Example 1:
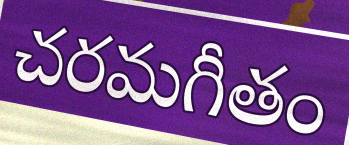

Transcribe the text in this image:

చరమగీతం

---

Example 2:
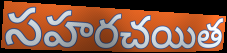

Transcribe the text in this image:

సహరచయిత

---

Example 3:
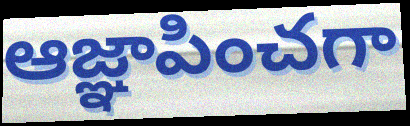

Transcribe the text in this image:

ఆజ్ఞాపించగా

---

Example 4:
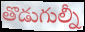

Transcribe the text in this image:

తొడుగుల్నీ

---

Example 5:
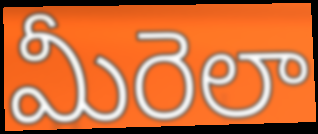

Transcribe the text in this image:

మీరెలా